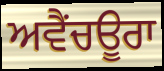
ਅਵੈਂਚਊਰਾ